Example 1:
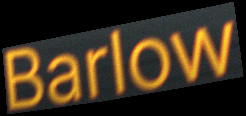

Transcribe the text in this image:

Barlow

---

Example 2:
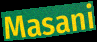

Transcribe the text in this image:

Masani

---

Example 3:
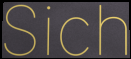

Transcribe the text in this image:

Sich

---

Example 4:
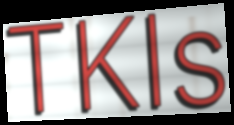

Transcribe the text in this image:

TKIs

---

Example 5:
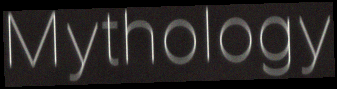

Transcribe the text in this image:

Mythology